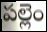
పల్లెం